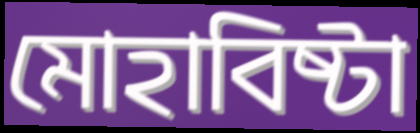
মোহাবিষ্টা